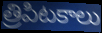
త్రిపిటకాలు